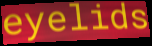
eyelids